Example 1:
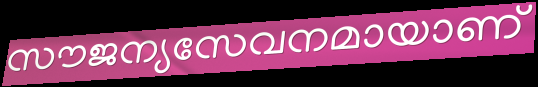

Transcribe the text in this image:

സൗജന്യസേവനമായാണ്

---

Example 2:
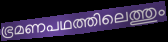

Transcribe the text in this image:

ഭ്രമണപഥത്തിലെത്തും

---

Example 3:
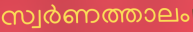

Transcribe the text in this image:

സ്വർണത്താലം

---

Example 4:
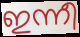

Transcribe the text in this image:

ഇന്നീ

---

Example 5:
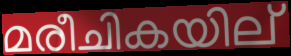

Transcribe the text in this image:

മരീചികയില്